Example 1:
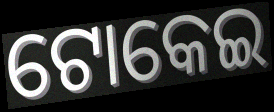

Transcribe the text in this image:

ଟୋକେଇ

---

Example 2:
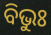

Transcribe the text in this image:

ବିଭୁଃ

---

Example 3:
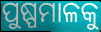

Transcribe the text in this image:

ପୁଷ୍ପମାଳକୁ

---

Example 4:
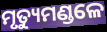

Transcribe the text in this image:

ମୃତ୍ୟୁମଣ୍ଡଳେ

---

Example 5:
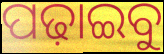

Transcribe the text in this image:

ପଢ଼ାଇବୁ